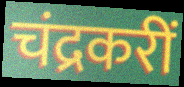
चंद्रकरीं